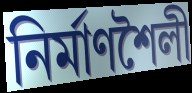
নিৰ্মাণশৈলী